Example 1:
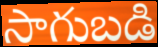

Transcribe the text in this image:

సాగుబడి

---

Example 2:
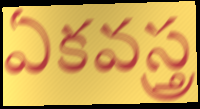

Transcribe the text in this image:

ఏకవస్త్ర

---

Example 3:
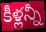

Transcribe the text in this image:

కీళ్లన్నీ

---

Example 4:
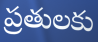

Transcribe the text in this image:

ప్రతులకు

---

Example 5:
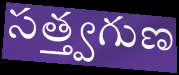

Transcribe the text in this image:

సత్త్వగుణ